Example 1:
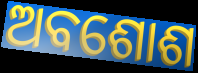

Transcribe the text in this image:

ଅବଶୋଶ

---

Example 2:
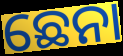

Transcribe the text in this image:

ଛେନା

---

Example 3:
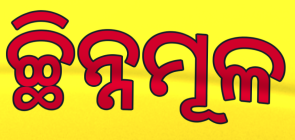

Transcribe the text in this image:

ଚ୍ଛିନ୍ନମୂଳ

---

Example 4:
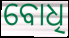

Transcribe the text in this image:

ବୋଧି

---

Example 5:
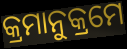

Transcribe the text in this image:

କ୍ରମାନୁକ୍ରମେ